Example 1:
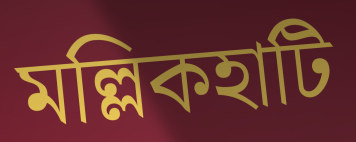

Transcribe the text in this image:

মল্লিকহাটি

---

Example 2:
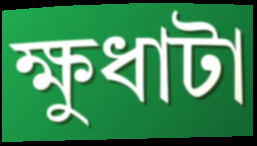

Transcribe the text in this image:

ক্ষুধাটা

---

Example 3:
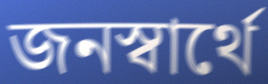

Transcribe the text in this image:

জনস্বার্থে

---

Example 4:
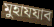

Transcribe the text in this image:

মুহাযযাব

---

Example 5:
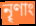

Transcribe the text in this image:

নৄণাং